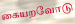
கையறவோடு